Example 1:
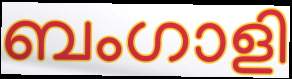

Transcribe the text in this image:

ബംഗാളി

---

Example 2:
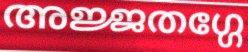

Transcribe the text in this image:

അജ്ജതഗ്ഗേ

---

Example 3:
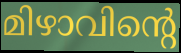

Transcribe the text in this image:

മിഴാവിന്റെ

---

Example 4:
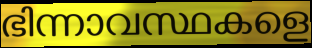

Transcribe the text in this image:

ഭിന്നാവസ്ഥകളെ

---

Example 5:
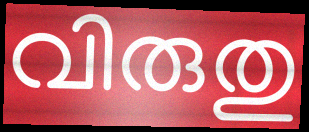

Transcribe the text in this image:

വിരുതു